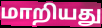
மாறியது